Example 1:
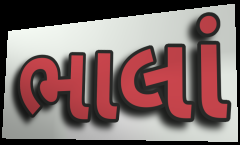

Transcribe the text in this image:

ભાલાં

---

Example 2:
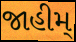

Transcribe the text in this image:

જાહીમ્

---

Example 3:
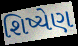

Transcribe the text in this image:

શિષ્યેણ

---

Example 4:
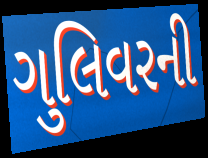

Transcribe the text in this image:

ગુલિવરની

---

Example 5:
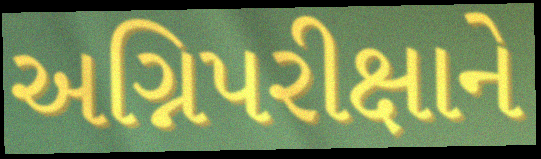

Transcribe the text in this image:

અગ્નિપરીક્ષાને